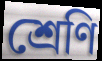
শ্রেণি